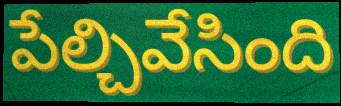
పేల్చివేసింది